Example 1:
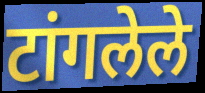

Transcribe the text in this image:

टांगलेले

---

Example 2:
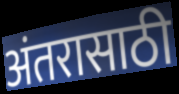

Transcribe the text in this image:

अंतरासाठी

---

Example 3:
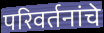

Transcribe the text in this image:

परिवर्तनांचे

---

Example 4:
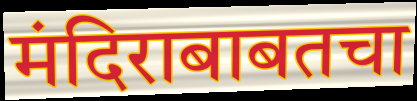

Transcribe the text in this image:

मंदिराबाबतचा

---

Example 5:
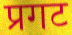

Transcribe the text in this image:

प्रगट